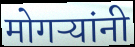
मोगऱ्यांनी